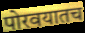
पोरवयातच